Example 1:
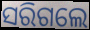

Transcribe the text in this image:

ସରିଗଲେ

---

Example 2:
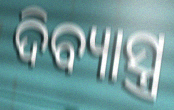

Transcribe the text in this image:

ଦିବ୍ୟାସ୍ତ୍ର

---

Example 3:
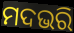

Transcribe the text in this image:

ମଦଭରି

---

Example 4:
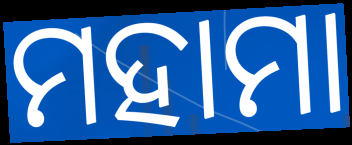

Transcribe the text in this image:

ମହାମା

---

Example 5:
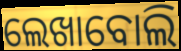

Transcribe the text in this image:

ଲେଖାବୋଲି